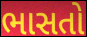
ભાસતો